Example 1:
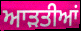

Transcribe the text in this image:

ਆੜਤੀਆਂ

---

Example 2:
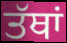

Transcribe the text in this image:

ਤੱਥਾਂ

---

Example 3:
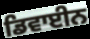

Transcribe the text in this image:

ਡਿਵਾਈਨ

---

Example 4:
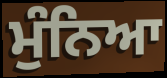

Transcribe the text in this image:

ਮੁੰਨਿਆ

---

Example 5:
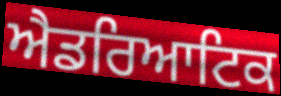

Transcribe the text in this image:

ਐਡਰਿਆਟਿਕ